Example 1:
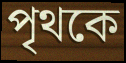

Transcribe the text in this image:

পৃথকে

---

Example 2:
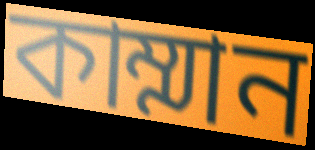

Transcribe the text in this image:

কাম্মান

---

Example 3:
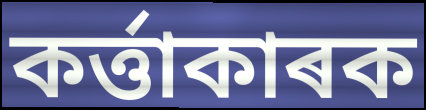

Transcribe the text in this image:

কৰ্ত্তাকাৰক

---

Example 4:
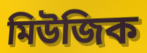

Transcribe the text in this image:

মিউজিক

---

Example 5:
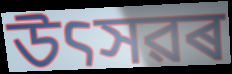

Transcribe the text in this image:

উৎসৱৰ